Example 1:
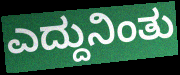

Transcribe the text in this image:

ಎದ್ದುನಿಂತು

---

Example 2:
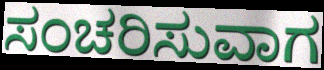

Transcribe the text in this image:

ಸಂಚರಿಸುವಾಗ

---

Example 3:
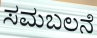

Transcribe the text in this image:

ಸಮಬಲನೆ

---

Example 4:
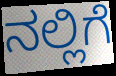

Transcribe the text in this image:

ನಲ್ಲಿಗೆ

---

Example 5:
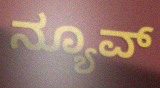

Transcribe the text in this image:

ನ್ಯೂವ್